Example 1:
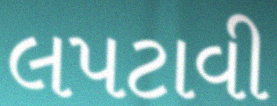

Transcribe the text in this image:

લપટાવી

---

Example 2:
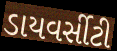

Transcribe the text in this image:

ડાયવર્સીટી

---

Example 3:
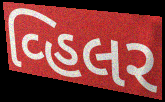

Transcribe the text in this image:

વ્હિલર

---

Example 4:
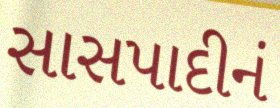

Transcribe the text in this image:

સાસપાદીનં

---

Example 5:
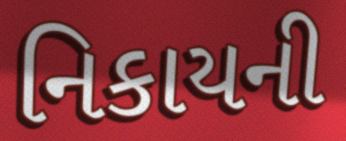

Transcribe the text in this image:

નિકાયની